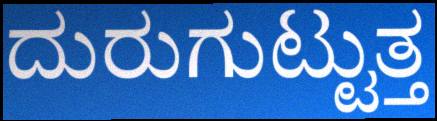
ದುರುಗುಟ್ಟುತ್ತ